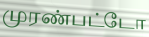
முரண்பட்டோ